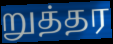
றுத்தர